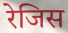
रेजिस